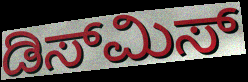
ಡಿಸ್‌ಮಿಸ್